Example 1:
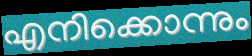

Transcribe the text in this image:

എനിക്കൊന്നും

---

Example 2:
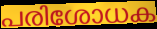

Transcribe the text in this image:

പരിശോധക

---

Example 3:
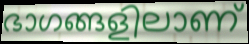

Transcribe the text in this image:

ഭാഗങ്ങളിലാണ്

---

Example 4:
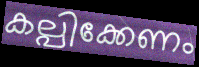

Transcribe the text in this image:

കല്പിക്കേണം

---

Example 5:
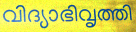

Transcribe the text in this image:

വിദ്യാഭിവൃത്തി